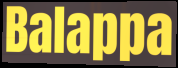
Balappa